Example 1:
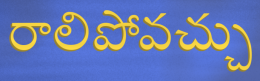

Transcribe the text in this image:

రాలిపోవచ్చు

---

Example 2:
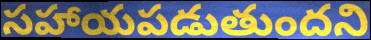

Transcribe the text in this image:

సహాయపడుతుందని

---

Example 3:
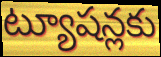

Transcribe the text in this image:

ట్యూషన్లకు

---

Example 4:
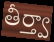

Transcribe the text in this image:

తీర్త్వా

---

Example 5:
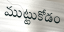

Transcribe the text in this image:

ముట్టుకోడం